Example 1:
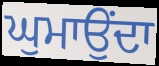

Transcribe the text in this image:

ਘੁਮਾਉਂਦਾ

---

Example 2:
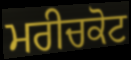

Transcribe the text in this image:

ਮਰੀਚਕੋਟ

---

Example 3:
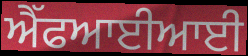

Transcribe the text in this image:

ਐੱਫਆਈਆਈ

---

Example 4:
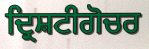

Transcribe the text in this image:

ਦ੍ਰਿਸ਼ਟੀਗੋਚਰ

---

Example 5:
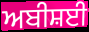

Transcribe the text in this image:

ਅਬੀਸ਼ਈ